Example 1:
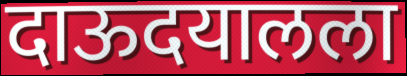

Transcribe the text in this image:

दाऊदयालला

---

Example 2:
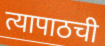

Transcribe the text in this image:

त्यापाठची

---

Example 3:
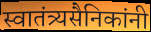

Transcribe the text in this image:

स्वातंत्र्यसैनिकांनी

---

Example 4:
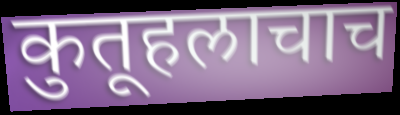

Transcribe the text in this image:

कुतूहलाचाच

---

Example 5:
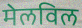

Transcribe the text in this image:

मेलविल